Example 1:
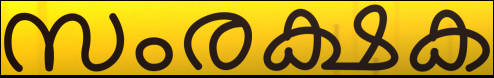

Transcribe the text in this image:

സംരക്ഷക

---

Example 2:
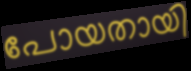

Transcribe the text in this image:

പോയതായി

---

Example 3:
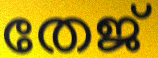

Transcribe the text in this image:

തേജ്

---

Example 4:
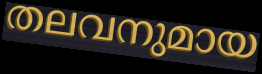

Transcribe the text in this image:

തലവനുമായ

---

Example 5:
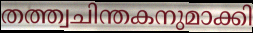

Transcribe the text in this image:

തത്ത്വചിന്തകനുമാക്കി